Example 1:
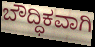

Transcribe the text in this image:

ಬೌದ್ಧಿಕವಾಗಿ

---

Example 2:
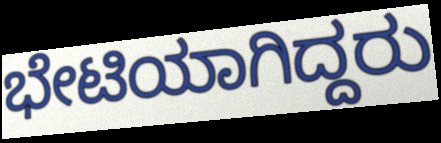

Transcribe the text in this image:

ಭೇಟಿಯಾಗಿದ್ದರು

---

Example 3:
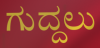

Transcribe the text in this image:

ಗುದ್ದಲು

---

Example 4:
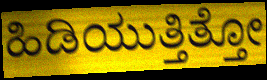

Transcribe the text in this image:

ಹಿಡಿಯುತ್ತಿತ್ತೋ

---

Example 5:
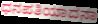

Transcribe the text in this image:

ಧನಪತಿಯಾದನಾ